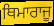
ਥਿਮਾਰਾਜੂ